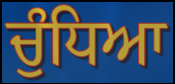
ਚੁੰਧਿਆ